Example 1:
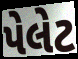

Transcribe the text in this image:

પેલેટ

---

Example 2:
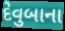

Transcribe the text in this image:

દેવુબાના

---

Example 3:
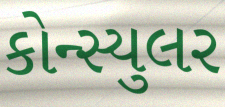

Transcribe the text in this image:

કોન્સ્યુલર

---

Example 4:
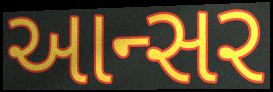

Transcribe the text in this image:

આન્સર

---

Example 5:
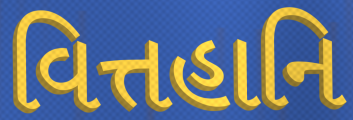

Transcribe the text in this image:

વિત્તહાનિ